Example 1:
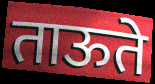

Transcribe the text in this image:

ताऊते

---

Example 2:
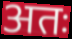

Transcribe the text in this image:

अतः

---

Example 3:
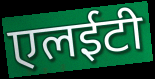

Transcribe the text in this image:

एलईटी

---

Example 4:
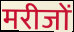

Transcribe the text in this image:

मरीजों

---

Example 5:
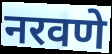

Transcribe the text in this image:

नरवणे